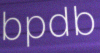
bpdb